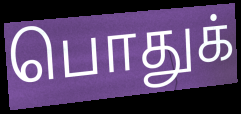
பொதுக்